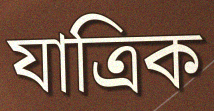
যাত্ৰিক